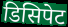
डिसिपेट